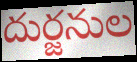
దుర్జనుల